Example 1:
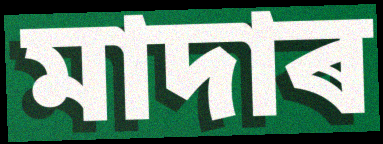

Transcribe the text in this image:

মাদাৰ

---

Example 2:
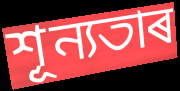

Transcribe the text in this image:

শূন্যতাৰ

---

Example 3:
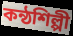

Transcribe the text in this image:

কন্ঠশিল্পী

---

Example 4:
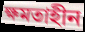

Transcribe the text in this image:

ক্ষমতাহীন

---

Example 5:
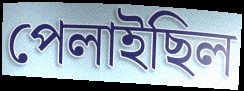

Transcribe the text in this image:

পেলাইছিল